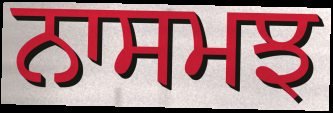
ਨਾਸਮਝ